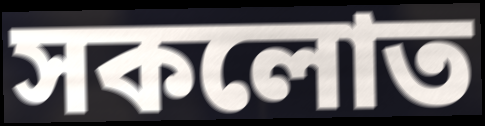
সকলোত